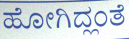
ಹೋಗಿದ್ಲಂತೆ